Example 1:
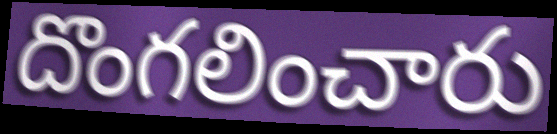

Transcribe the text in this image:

దొంగలించారు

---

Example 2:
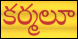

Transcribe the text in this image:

కర్మలూ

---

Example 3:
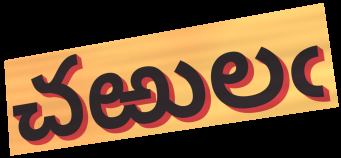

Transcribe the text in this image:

చఱులఁ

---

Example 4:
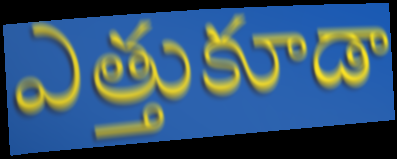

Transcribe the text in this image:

ఎత్తుకూడా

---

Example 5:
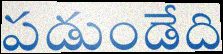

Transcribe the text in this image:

పడుండేది